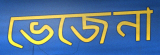
ভেজেনা